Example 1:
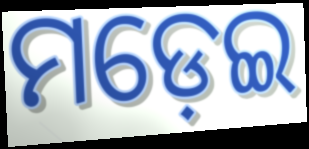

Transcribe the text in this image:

ମଡ଼େଇ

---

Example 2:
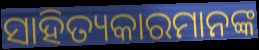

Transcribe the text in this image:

ସାହିତ୍ୟକାରମାନଙ୍କ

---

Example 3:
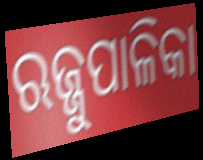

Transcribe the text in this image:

ଋଜ୍ଜୁପାଳିକା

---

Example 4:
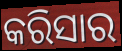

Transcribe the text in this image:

କରିସାର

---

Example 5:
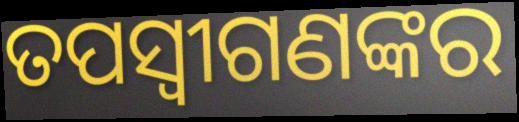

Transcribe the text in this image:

ତପସ୍ୱୀଗଣଙ୍କର